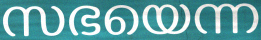
സഭയെന്ന